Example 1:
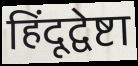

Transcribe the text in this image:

हिंदूद्वेष्टा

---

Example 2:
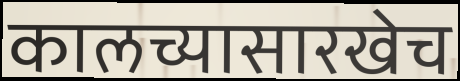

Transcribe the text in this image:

कालच्यासारखेच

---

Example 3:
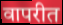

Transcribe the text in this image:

वापरीत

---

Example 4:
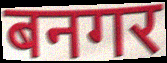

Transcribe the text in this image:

बनगर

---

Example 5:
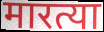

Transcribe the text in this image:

मारत्या